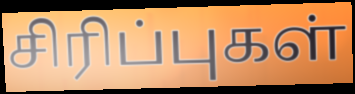
சிரிப்புகள்